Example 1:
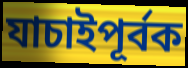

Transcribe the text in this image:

যাচাইপূর্বক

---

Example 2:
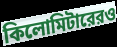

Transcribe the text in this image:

কিলোমিটারেরও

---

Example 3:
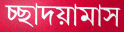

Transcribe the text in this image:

চ্ছাদয়ামাস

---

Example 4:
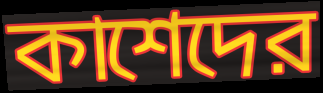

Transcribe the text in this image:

কাশেদের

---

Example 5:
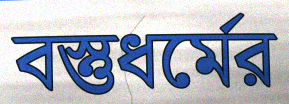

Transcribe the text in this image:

বস্তুধর্মের